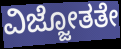
ವಿಜ್ಜೋತತೇ